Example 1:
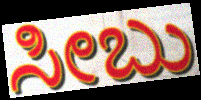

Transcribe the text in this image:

ಸೀಬು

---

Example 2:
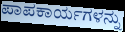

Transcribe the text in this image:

ಪಾಪಕಾರ್ಯಗಳನ್ನು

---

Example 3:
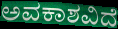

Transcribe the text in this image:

ಅವಕಾಶವಿದೆ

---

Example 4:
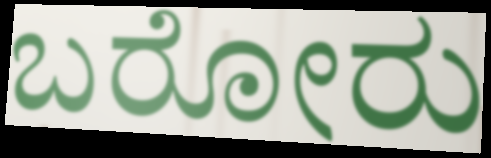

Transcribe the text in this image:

ಬರೋರು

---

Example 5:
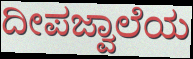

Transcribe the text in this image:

ದೀಪಜ್ವಾಲೆಯ